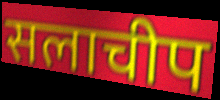
सलाचीप